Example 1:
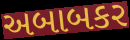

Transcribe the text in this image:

અબાબકર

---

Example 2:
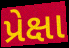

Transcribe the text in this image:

પ્રેક્ષા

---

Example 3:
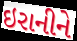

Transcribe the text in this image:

ઇરાનીને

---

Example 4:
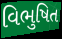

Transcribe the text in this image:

વિભુષિત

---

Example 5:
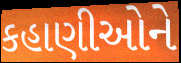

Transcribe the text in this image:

કહાણીઓને